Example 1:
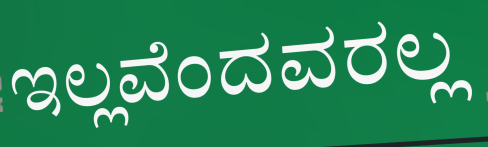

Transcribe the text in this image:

ಇಲ್ಲವೆಂದವರಲ್ಲ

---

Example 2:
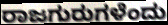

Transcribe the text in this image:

ರಾಜಗುರುಗಳೆಂದು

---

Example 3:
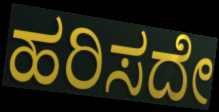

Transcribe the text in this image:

ಹರಿಸದೇ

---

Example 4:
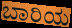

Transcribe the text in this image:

ಬಾರಿಯ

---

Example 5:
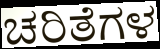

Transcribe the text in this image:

ಚರಿತೆಗಳ